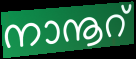
നാനൂറ്